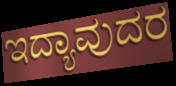
ಇದ್ಯಾವುದರ